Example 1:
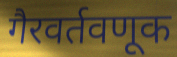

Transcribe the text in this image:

गैरवर्तवणूक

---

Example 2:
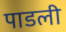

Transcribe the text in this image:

पाडली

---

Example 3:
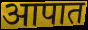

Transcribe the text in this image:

आपात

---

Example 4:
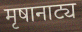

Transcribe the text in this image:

मृषानाट्य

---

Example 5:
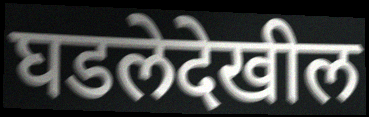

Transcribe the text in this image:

घडलेदेखील